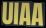
UIAA